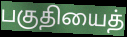
பகுதியைத்